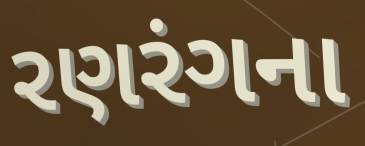
રણરંગના